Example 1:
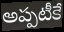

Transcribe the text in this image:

అప్పటీకే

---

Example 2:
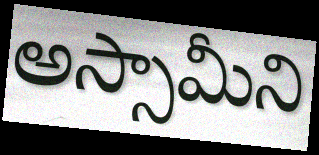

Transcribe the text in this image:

అస్సామీని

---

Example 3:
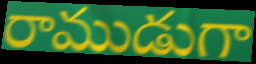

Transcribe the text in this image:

రాముడుగా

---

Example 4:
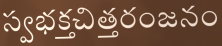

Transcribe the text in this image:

స్వభక్తచిత్తరంజనం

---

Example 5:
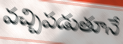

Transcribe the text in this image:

వచ్చిపడుతూనే